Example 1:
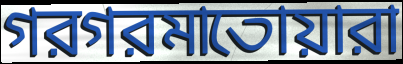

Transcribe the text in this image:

গরগরমাতোয়ারা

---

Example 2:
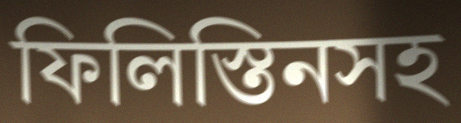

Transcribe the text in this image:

ফিলিস্তিনসহ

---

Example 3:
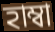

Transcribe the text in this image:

হাম্বা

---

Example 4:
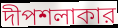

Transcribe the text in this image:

দীপশলাকার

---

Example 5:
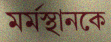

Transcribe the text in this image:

মর্মস্থানকে